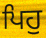
ਪਿਹੁ